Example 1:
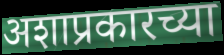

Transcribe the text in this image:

अशाप्रकारच्या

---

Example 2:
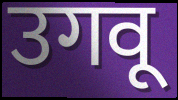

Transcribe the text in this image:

उगवू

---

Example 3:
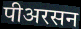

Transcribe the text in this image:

पीअरसन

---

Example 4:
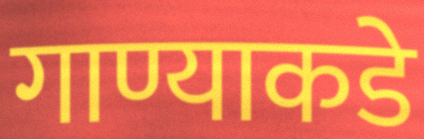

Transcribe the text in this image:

गाण्याकडे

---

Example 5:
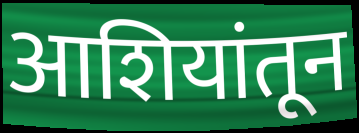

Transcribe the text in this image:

आशियांतून